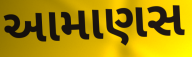
આમાણસ